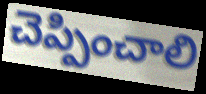
చెప్పించాలి